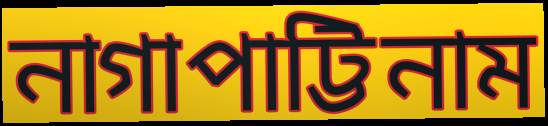
নাগাপাট্টিনাম